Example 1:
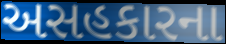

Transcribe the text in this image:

અસહકારના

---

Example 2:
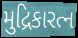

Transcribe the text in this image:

મુદ્રિકારત્ન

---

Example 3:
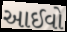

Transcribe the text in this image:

આઈવો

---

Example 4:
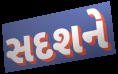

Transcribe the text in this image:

સદશને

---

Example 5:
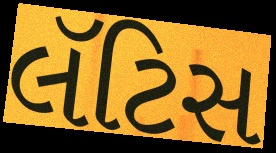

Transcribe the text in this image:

લૅટિસ